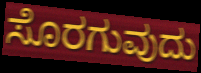
ಸೊರಗುವುದು